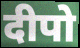
दीपो